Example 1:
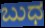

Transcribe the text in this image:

ಬುಧ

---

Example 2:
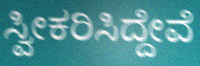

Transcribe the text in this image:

ಸ್ವೀಕರಿಸಿದ್ದೇವೆ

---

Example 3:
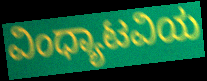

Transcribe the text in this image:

ವಿಂಧ್ಯಾಟವಿಯ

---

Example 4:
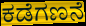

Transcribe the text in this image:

ಕಡೆಗಣನೆ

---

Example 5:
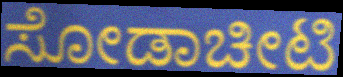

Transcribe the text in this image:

ಸೋಡಾಚೀಟಿ